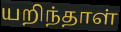
யறிந்தாள்